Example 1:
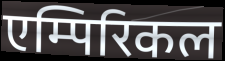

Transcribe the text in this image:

एम्पिरिकल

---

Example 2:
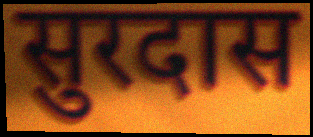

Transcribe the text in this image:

सुरदास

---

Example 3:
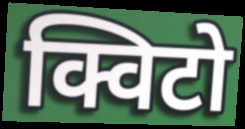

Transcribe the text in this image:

क्विटो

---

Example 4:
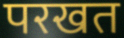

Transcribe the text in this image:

परखत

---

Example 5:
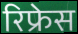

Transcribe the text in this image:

रिफ्रेस